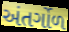
અંતર્ગોળ